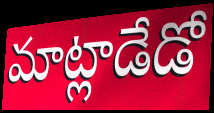
మాట్లాడేడో